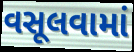
વસૂલવામાં